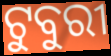
ଟୁବୁରୀ